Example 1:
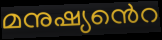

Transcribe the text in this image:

മനുഷ്യൻെറ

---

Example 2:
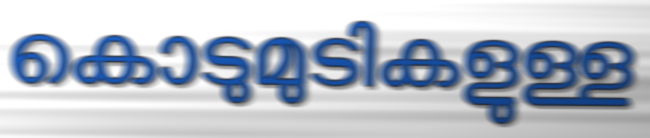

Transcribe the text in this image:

കൊടുമുടികളുള്ള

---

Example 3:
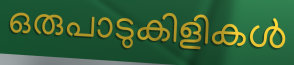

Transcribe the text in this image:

ഒരുപാടുകിളികൾ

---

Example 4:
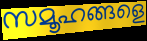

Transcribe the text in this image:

സമൂഹങ്ങളെ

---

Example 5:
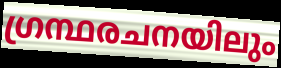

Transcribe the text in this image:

ഗ്രന്ഥരചനയിലും